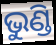
ଭୁଣ୍ଡି